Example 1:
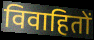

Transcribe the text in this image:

विवाहितों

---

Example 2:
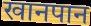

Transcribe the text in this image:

खानपान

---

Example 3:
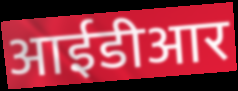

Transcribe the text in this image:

आईडीआर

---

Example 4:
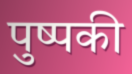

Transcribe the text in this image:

पुष्पकी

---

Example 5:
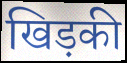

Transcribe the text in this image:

खिड़की